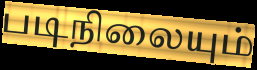
படிநிலையும்